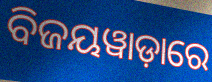
ବିଜୟୱାଡ଼ାରେ